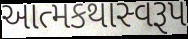
આત્મકથાસ્વરૂપ